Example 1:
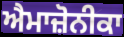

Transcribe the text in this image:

ਐਮਾਜ਼ੋਨੀਕਾ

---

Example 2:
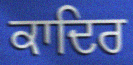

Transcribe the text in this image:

ਕਾਦਿਰ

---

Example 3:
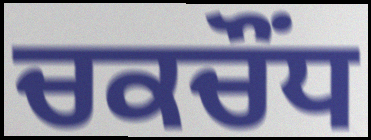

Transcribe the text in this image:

ਚਕਚੌਂਧ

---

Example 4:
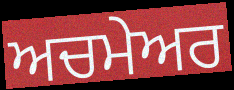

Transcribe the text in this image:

ਅਚਮੇਅਰ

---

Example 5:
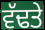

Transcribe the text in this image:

ਵੱਢਤੇ